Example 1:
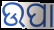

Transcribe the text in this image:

ଉପା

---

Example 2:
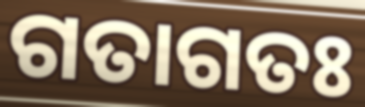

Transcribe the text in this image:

ଗତାଗତଃ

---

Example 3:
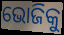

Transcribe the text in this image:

ଭୋଜିକୁ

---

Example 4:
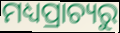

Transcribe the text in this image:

ମଧ୍ୟପ୍ରାଚ୍ୟରୁ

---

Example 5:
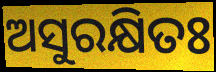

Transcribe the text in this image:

ଅସୁରକ୍ଷିତଃ